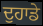
ਦੁਹਾਡੇ